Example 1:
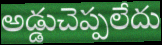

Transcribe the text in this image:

అడ్డుచెప్పలేదు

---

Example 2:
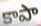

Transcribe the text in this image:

కాపా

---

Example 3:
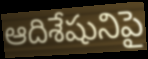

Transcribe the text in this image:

ఆదిశేషునిపై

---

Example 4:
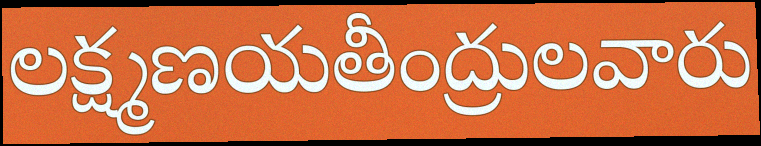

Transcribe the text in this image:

లక్ష్మణయతీంద్రులవారు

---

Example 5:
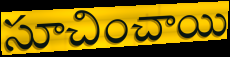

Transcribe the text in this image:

సూచించాయి